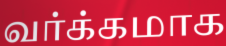
வர்க்கமாக